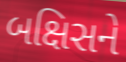
બક્ષિસને